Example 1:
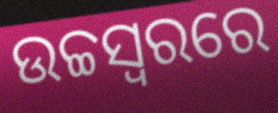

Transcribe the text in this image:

ଉଚ୍ଚସ୍ଵରରେ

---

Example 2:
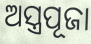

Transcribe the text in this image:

ଅସ୍ତ୍ରପୂଜା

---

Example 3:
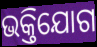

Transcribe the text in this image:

ଭକ୍ତିଯୋଗ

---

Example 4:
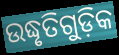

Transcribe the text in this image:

ଉଦ୍ଧୃତିଗୁଡ଼ିକ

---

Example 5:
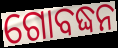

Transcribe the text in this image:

ଗୋବଦ୍ଧନ